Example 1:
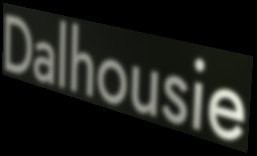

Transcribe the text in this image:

Dalhousie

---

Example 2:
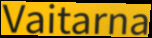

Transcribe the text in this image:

Vaitarna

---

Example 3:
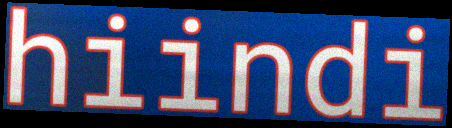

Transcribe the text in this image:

hiindi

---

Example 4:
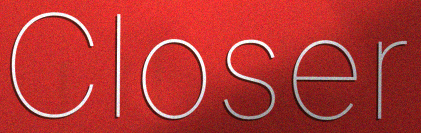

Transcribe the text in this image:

Closer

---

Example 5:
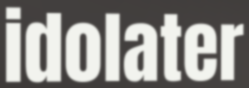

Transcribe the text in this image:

idolater